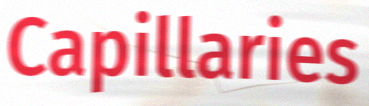
Capillaries